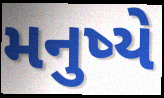
મનુષ્યે